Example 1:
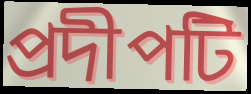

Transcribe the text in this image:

প্রদীপটি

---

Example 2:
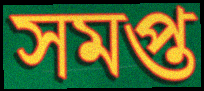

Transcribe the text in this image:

সমপ্ত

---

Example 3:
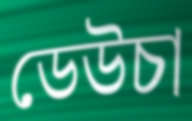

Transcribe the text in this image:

ডেউচা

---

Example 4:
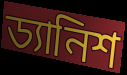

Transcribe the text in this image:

ড্যানিশ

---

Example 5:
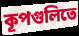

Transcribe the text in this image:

কূপগুলিতে